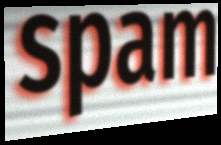
spam